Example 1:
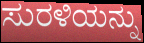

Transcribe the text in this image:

ಸುರಳಿಯನ್ನು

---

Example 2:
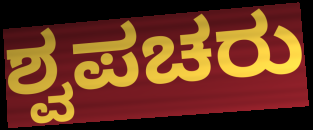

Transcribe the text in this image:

ಶ್ವಪಚರು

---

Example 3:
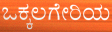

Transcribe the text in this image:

ಒಕ್ಕಲಗೇರಿಯ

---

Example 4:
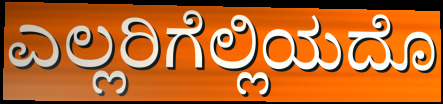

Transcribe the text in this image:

ಎಲ್ಲರಿಗೆಲ್ಲಿಯದೊ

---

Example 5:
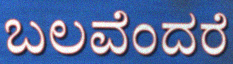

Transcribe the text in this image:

ಬಲವೆಂದರೆ